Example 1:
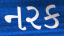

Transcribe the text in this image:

નરક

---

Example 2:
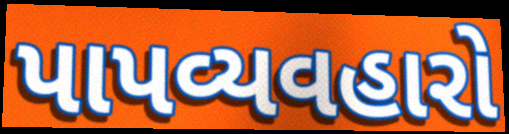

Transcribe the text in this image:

પાપવ્યવહારો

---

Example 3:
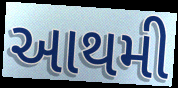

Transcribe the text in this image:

આથમી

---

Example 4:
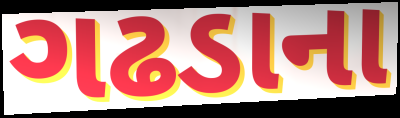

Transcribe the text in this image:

ગઢડાના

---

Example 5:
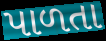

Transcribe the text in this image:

પાળતા